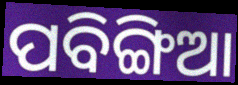
ପବିଙ୍ଗିଆ